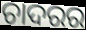
ଚାଦରର